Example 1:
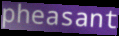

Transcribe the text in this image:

pheasant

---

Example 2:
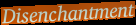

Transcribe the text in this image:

Disenchantment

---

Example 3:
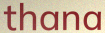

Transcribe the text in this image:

thana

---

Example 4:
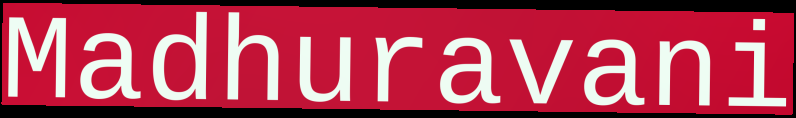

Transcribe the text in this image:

Madhuravani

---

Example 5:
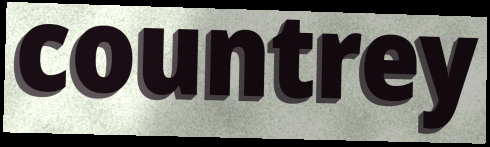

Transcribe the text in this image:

countrey